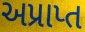
અપ્રાપ્ત